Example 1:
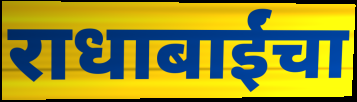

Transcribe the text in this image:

राधाबाईंचा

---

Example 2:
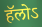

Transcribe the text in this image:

हॅलोऽ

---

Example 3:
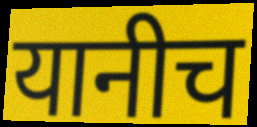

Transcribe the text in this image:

यानीच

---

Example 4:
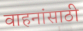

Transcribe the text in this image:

वाहनांसाठी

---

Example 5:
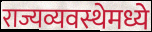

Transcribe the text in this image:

राज्यव्यवस्थेमध्ये